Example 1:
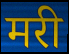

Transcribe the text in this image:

मरी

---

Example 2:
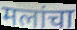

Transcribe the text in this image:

मलांचा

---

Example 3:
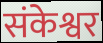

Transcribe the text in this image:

संकेश्वर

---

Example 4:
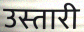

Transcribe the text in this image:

उस्तारी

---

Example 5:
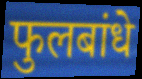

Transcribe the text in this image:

फुलबांधे